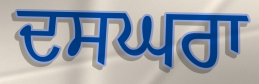
ਦਸਘਰਾ